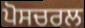
ਪੋਸਚਰਲ